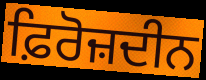
ਫ਼ਿਰੋਜ਼ਦੀਨ